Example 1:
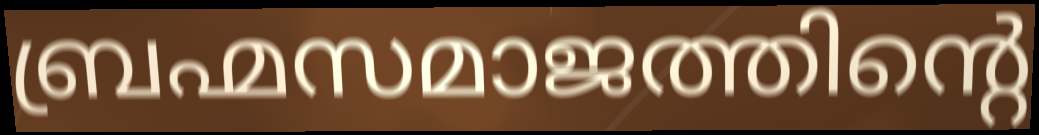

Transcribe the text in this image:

ബ്രഹ്മസമാജത്തിന്റെ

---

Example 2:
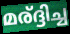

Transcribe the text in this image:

മര്ദ്ദിച്ച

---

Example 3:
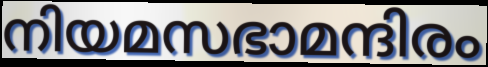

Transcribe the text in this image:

നിയമസഭാമന്ദിരം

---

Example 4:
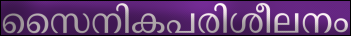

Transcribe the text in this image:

സൈനികപരിശീലനം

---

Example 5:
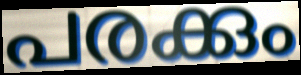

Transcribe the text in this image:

പരക്കും